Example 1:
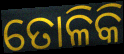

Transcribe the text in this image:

ତୋଳିକି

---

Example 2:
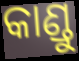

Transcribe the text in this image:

କାଣ୍ଡୁ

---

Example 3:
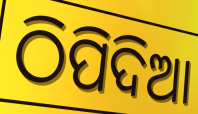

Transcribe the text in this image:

ଠିପିଦିଆ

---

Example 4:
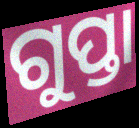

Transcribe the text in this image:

ଗୁପ୍ତା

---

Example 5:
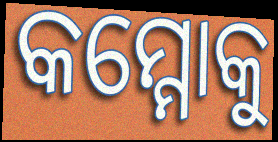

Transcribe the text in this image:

କମ୍ମୋକୁ